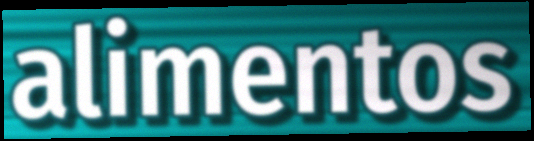
alimentos